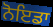
ਨੋਇਡਾ